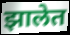
झालेत